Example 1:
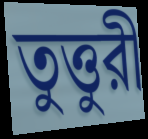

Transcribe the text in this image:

তুত্তুরী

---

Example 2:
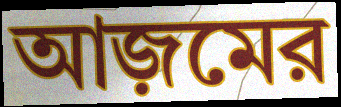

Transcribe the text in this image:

আজ়মের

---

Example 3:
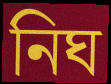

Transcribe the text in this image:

নিঘ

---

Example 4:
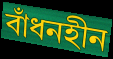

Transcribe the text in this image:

বাঁধনহীন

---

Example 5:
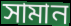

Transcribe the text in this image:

সামান